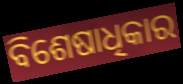
ବିଶେଷାଧିକାର